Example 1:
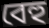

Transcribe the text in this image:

বেহু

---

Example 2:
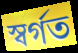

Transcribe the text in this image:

স্বৰ্গত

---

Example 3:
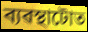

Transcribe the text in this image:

ব্যৱস্থাটোত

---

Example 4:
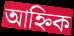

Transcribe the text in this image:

আহ্নিক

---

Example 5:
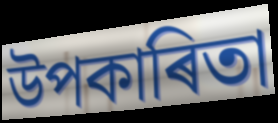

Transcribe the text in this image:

উপকাৰিতা